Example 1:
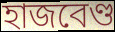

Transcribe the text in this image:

হাজবেণ্ড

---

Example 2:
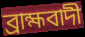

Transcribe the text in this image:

ব্ৰাহ্মবাদী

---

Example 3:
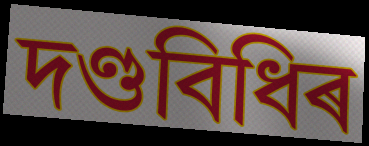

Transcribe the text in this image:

দণ্ডবিধিৰ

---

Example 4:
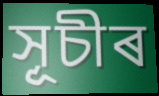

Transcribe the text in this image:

সূচীৰ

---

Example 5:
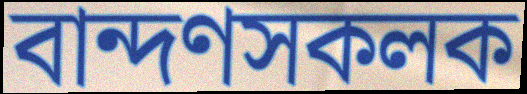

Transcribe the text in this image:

বান্দণসকলক